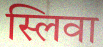
स्लिवा